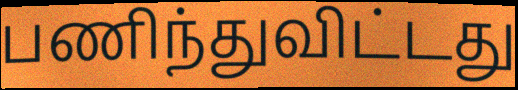
பணிந்துவிட்டது